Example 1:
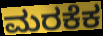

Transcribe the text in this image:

ಮರಕೆಕ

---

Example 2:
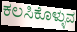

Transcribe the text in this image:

ಕಲಸಿಕೊಳ್ಳುವ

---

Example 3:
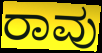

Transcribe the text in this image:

ರಾವು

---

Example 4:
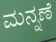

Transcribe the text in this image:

ಮನ್ನಣೆ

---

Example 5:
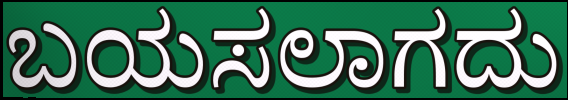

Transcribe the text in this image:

ಬಯಸಲಾಗದು